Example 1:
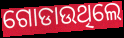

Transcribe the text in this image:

ଗୋଡାଉଥିଲେ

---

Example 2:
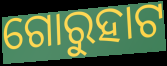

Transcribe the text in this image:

ଗୋରୁହାଟ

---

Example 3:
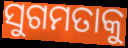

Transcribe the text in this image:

ସୁଗମତାକୁ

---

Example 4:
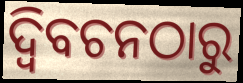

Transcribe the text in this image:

ଦ୍ବିବଚନଠାରୁ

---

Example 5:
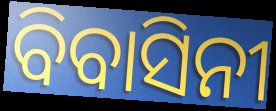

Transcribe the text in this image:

ବିବାସିନୀ